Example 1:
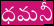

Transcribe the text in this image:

ధమనీ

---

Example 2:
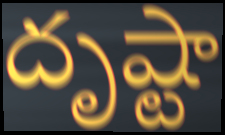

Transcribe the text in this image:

దృష్టా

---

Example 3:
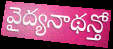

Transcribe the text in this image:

వైద్యనాథన్తో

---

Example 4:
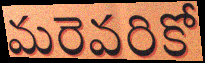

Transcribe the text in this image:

మరెవరికో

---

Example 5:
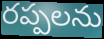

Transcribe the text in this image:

రప్పలను